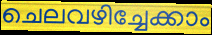
ചെലവഴിച്ചേക്കാം